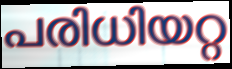
പരിധിയറ്റ